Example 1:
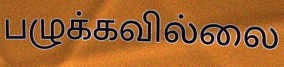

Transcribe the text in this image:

பழுக்கவில்லை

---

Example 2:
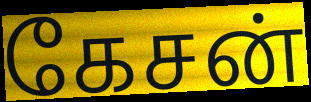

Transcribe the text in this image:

கேசன்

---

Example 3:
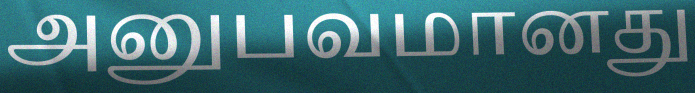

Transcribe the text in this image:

அனுபவமானது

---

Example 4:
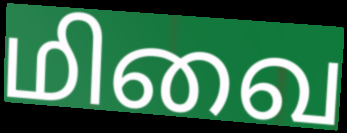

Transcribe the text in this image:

மிவை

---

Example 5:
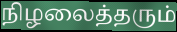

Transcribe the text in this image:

நிழலைத்தரும்